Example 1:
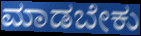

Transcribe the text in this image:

ಮಾಡಬೇಕು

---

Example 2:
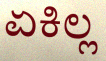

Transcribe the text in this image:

ಏಕಿಲ್ಲ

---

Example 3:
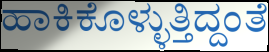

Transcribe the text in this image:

ಹಾಕಿಕೊಳ್ಳುತ್ತಿದ್ದಂತೆ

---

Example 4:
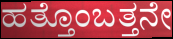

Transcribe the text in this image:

ಹತ್ತೊಂಬತ್ತನೇ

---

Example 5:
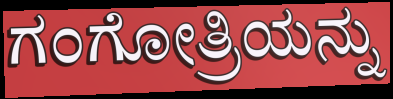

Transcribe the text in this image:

ಗಂಗೋತ್ರಿಯನ್ನು